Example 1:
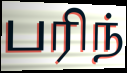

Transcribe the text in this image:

பரிந்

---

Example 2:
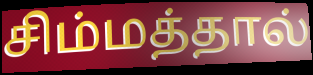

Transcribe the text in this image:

சிம்மத்தால்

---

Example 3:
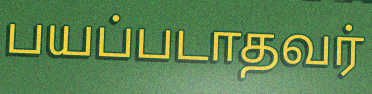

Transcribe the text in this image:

பயப்படாதவர்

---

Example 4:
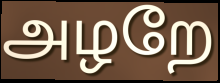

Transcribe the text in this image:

அழறே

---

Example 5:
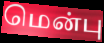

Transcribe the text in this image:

மென்பு